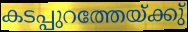
കടപ്പുറത്തേയ്ക്കു്